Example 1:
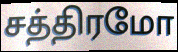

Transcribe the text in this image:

சத்திரமோ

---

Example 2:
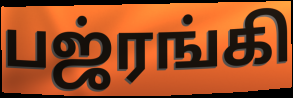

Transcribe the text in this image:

பஜ்ரங்கி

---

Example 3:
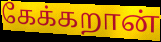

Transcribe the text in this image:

கேக்கறான்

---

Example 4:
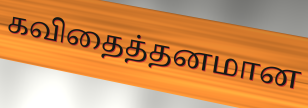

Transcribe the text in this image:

கவிதைத்தனமான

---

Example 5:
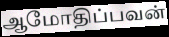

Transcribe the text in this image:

ஆமோதிப்பவன்